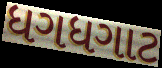
ધગધગાટ